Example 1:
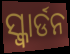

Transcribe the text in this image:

ସ୍କ୍ବାର୍ଡନ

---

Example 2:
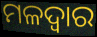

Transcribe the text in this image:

ମଳଦ୍ୱାର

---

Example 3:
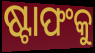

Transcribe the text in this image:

ଷ୍ଟାଫଂକୁ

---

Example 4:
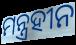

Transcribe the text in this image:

ମନ୍ତ୍ରହୀନ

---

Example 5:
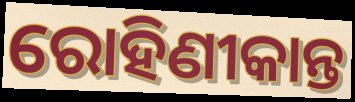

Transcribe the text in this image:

ରୋହିଣୀକାନ୍ତ